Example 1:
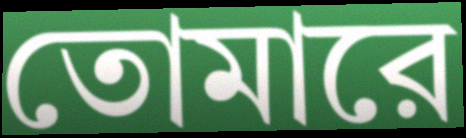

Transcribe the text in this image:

তোমারে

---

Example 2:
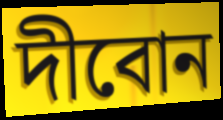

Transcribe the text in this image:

দীবোন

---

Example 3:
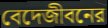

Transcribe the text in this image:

বেদেজীবনের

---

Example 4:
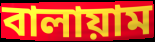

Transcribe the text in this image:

বালায়াম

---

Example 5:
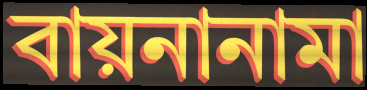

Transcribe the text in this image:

বায়নানামা